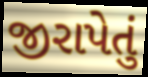
જીરાપેતું